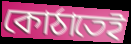
কোঠাতেই